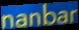
nanbar